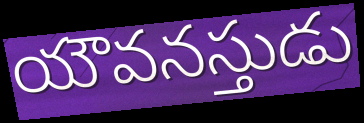
యౌవనస్తుడు